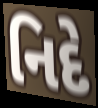
નિદે